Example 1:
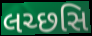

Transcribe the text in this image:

લચ્છસિ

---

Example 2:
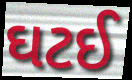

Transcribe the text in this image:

ઘટઈ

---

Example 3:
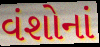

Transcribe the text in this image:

વંશોનાં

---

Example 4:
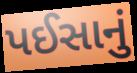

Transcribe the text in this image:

પઈસાનું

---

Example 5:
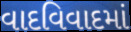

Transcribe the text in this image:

વાદવિવાદમાં